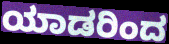
ಯಾಡರಿಂದ